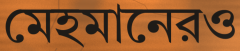
মেহমানেরও